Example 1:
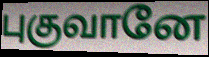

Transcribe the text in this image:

புகுவானே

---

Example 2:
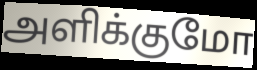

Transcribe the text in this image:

அளிக்குமோ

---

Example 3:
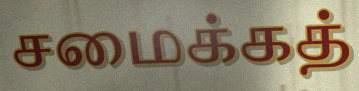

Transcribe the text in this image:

சமைக்கத்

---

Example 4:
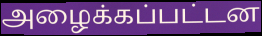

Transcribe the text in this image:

அழைக்கப்பட்டன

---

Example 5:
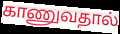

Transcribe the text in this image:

காணுவதால்